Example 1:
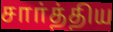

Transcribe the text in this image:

சார்த்திய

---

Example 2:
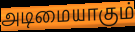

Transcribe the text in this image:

அடிமையாகும்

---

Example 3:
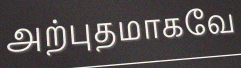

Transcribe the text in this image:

அற்புதமாகவே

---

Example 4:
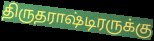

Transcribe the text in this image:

திருதராஷ்டிரருக்கு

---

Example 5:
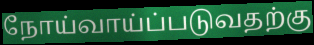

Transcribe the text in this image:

நோய்வாய்ப்படுவதற்கு